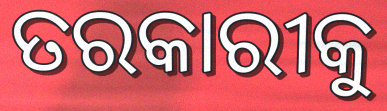
ତରକାରୀକୁ